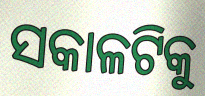
ସକାଳଟିକୁ